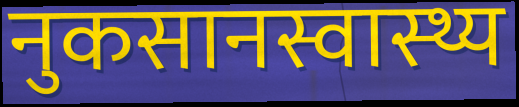
नुकसानस्वास्थ्य